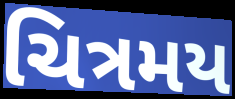
ચિત્રમય